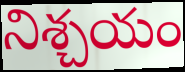
నిశ్చయం